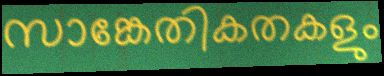
സാങ്കേതികതകളും